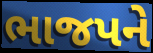
ભાજપને